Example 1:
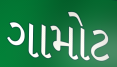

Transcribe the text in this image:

ગામોટ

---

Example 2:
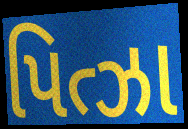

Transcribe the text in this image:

પિત્ઝા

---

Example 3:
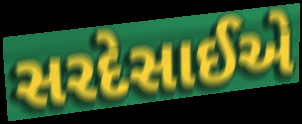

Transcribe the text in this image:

સરદેસાઈએ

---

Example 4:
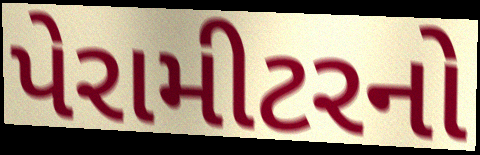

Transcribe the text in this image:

પેરામીટરનો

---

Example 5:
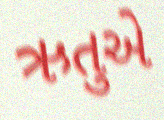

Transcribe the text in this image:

ઋતુએ